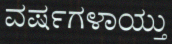
ವರ್ಷಗಳಾಯ್ತು